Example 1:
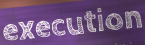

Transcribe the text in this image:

execution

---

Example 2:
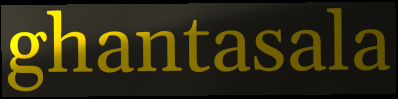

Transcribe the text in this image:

ghantasala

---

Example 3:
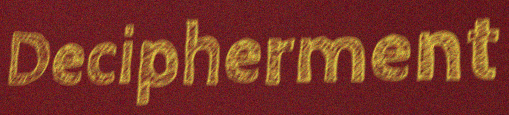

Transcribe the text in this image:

Decipherment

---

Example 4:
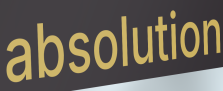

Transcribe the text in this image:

absolution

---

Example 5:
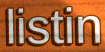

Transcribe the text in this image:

listin